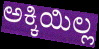
ಅಕ್ಕಿಯಿಲ್ಲ